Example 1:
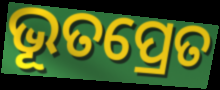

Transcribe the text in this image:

ଭୂତପ୍ରେତ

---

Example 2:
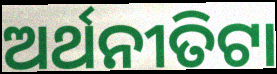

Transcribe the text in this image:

ଅର୍ଥନୀତିଟା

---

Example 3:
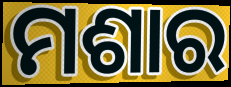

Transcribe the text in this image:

ମଶାର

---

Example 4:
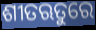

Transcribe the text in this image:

ଶୀତଋତୁରେ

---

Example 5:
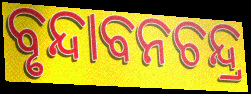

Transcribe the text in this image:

ବୃନ୍ଦାବନଚନ୍ଦ୍ର